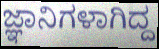
ಜ್ಞಾನಿಗಳಾಗಿದ್ದ